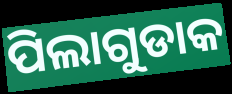
ପିଲାଗୁଡାକ